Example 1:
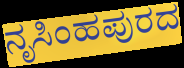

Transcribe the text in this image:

ನೃಸಿಂಹಪುರದ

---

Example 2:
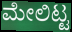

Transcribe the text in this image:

ಮೇಲಿಟ್ಟ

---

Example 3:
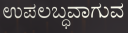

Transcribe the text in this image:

ಉಪಲಬ್ಧವಾಗುವ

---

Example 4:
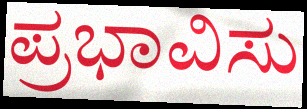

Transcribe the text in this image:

ಪ್ರಭಾವಿಸು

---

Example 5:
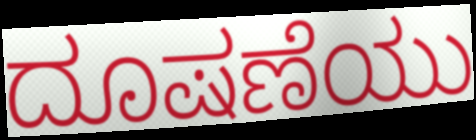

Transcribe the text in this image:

ದೂಷಣೆಯು